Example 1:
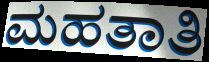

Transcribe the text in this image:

ಮಹತಾತಿ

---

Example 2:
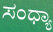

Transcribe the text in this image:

ಸಂಧ್ಯಾ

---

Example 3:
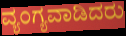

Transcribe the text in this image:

ವ್ಯಂಗ್ಯವಾಡಿದರು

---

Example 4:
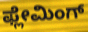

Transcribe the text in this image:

ಫ್ಲೇಮಿಂಗ್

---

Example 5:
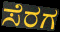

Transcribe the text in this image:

ಸೆರಗ